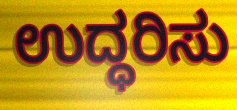
ಉದ್ಧರಿಸು